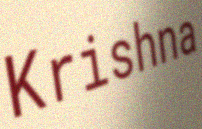
Krishna